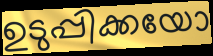
ഉടുപ്പിക്കയോ